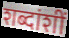
शब्दांशीं